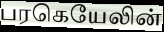
பரகெயேலின்